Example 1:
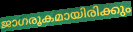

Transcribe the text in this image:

ജാഗരൂകമായിരിക്കും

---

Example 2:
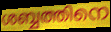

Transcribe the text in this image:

ശബ്ബത്തിനെ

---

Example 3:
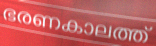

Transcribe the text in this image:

ഭരണകാലത്ത്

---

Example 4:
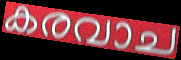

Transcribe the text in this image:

കരവാച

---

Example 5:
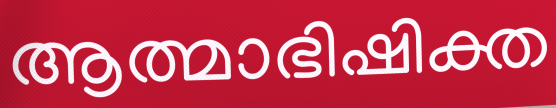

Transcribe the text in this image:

ആത്മാഭിഷിക്ത